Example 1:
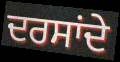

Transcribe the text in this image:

ਦਰਸਾਂਦੇ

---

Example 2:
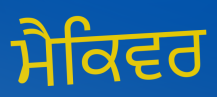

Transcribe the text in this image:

ਮੈਕਿਵਰ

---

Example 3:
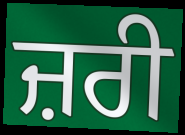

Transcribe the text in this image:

ਜ਼ਰੀ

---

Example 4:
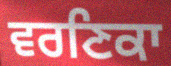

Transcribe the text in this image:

ਵਰਣਿਕਾ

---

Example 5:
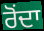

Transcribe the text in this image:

ਰੋਂਦਾ